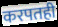
करपतही